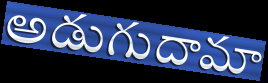
అడుగుదామా